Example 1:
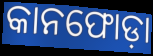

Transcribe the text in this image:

କାନଫୋଡ଼ା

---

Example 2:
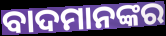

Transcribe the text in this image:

ବାଦମାନଙ୍କର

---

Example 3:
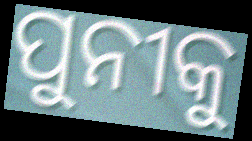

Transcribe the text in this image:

ପୁନୀକୁ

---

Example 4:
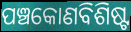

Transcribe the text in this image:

ପଞ୍ଚକୋଣବିଶିଷ୍ଟ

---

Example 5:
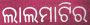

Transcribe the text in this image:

ଲାଲମାଟିର